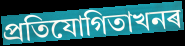
প্ৰতিযোগিতাখনৰ